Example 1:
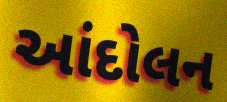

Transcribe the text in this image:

આંદોલન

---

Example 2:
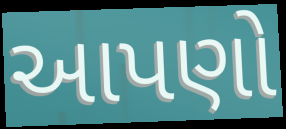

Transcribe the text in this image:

આપણો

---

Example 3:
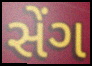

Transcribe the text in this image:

સેંગ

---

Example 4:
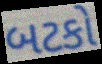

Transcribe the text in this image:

બટકો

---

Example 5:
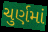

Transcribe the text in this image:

ચુર્ણમાં